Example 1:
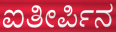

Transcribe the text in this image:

ಐತೀರ್ಪಿನ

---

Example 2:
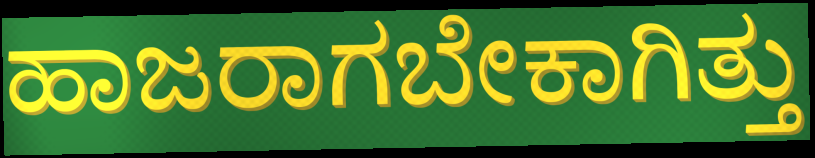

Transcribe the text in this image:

ಹಾಜರಾಗಬೇಕಾಗಿತ್ತು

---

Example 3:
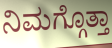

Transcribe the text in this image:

ನಿಮಗ್ಗೊತ್ತಾ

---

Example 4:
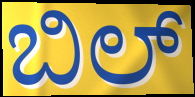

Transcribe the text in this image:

ಬಿಲ್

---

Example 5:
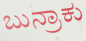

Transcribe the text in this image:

ಬುನ್ರಾಕು